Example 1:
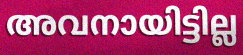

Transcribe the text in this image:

അവനായിട്ടില്ല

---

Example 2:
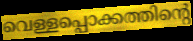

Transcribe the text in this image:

വെള്ളപ്പൊക്കത്തിന്റെ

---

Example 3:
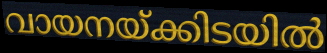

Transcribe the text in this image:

വായനയ്ക്കിടയിൽ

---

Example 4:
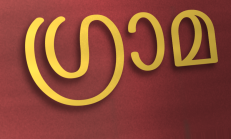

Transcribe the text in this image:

ഗ്രാമ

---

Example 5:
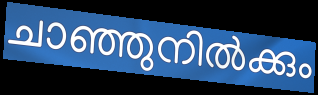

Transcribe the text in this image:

ചാഞ്ഞുനിൽക്കും